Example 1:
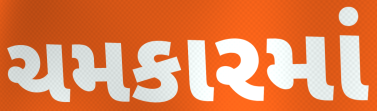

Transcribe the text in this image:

ચમકારમાં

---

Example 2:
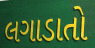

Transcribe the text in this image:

લગાડાતો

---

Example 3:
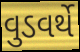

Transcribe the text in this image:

વુડવર્થે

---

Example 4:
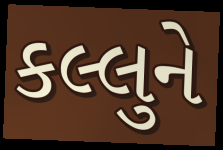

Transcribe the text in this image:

કલ્લુને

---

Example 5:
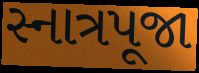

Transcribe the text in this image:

સ્નાત્રપૂજા